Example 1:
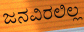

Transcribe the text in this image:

ಜನವಿರಲಿಲ್ಲ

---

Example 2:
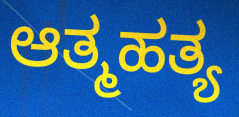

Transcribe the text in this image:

ಆತ್ಮಹತ್ಯ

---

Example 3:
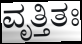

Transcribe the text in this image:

ವೃತ್ತಿತಃ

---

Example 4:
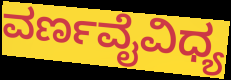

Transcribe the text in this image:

ವರ್ಣವೈವಿಧ್ಯ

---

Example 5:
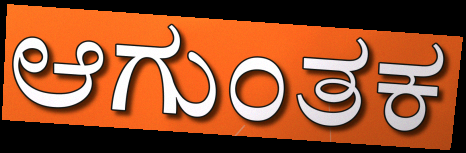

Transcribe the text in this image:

ಆಗುಂತಕ